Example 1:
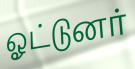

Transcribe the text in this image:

ஓட்டுனர்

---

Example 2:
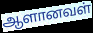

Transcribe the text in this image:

ஆளானவள்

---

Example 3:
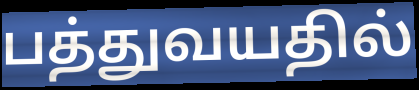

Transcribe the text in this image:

பத்துவயதில்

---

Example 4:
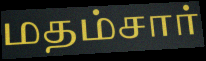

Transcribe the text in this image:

மதம்சார்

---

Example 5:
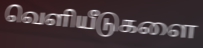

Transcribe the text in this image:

வெளியீடுகளை